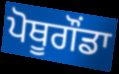
ਪੋਥੂਗੌਂਡਾ